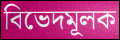
বিভেদমূলক